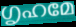
ഗൃഹമേ